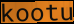
kootu